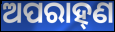
ଅପରାହ୍‌ଣ